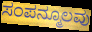
ಸಂಪನ್ಮೂಲವು